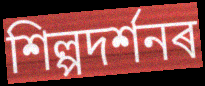
শিল্পদৰ্শনৰ